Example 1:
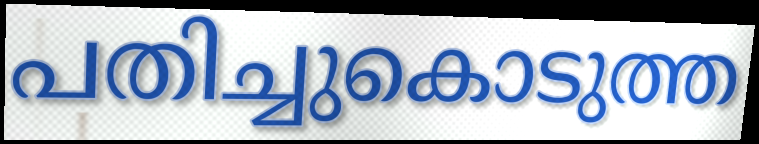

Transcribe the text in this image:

പതിച്ചുകൊടുത്ത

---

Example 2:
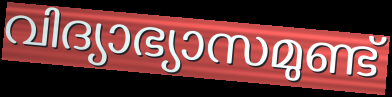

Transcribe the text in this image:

വിദ്യാഭ്യാസമുണ്ട്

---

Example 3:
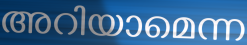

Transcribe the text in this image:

അറിയാമെന്ന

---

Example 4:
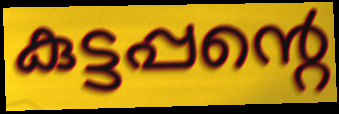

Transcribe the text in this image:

കുട്ടപ്പന്റെ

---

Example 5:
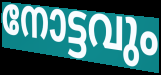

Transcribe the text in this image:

നോട്ടവും